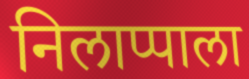
निलाप्पाला